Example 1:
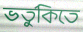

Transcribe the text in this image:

ভর্তুকিতে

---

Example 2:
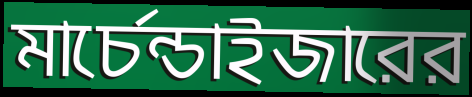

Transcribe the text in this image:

মার্চেন্ডাইজারের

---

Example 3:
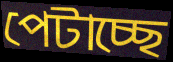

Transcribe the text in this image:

পেটাচ্ছে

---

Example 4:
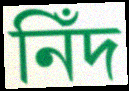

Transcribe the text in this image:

নিঁদ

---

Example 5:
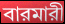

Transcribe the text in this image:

বারমারী